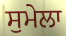
ਸੁਮੇਲਾ